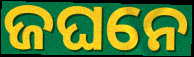
ଜଘନେ